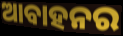
ଆବାହନର